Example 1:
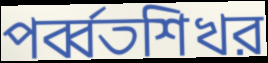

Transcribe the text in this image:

পর্ব্বতশিখর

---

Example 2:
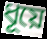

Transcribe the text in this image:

ধূয়ে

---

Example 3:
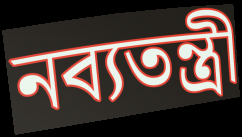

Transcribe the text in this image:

নব্যতন্ত্রী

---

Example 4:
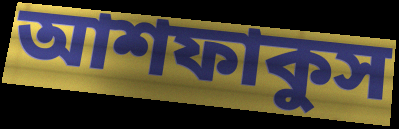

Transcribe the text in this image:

আশফাকুস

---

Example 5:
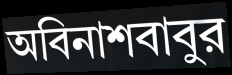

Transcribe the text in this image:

অবিনাশবাবুর